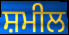
ਸ਼ਮੀਲ